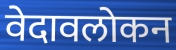
वेदावलोकन